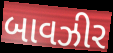
બાવઝીર